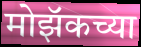
मोझॅकच्या